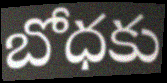
బోధకు